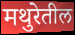
मथुरेतील